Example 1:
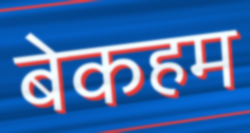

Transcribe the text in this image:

बेकहम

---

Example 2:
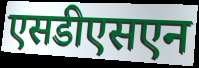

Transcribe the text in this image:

एसडीएसएन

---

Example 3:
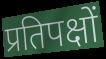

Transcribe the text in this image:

प्रतिपक्षों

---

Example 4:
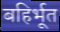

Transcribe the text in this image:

बहिर्भूत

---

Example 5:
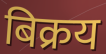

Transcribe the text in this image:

बिक्रय